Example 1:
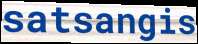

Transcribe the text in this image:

satsangis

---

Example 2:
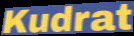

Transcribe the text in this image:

Kudrat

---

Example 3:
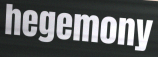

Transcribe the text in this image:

hegemony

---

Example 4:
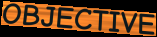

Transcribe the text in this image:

OBJECTIVE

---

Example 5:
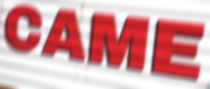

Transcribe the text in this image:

CAME